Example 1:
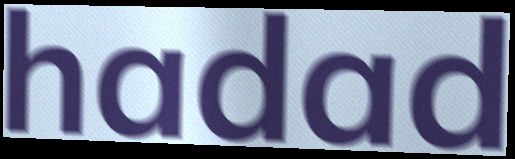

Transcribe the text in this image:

hadad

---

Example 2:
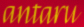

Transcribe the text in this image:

antaru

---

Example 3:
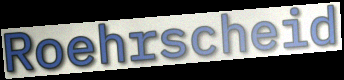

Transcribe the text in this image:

Roehrscheid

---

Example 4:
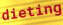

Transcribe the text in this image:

dieting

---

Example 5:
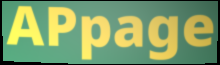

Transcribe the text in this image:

APpage